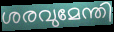
ശരവുമേന്തി